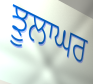
ਝੂਲਾਘਰ